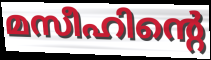
മസീഹിന്റെ